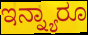
ಇನ್ನ್ಯಾರೂ